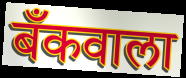
बँकवाला